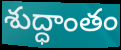
శుద్ధాంతం